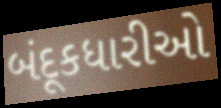
બંદૂકધારીઓ